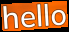
hello